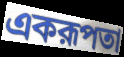
একরূপতা